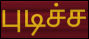
புடிச்ச